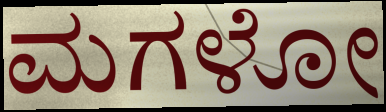
ಮಗಳೋ